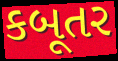
કબૂતર